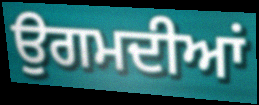
ਉਗਮਦੀਆਂ